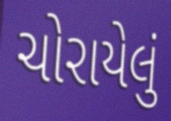
ચોરાયેલું